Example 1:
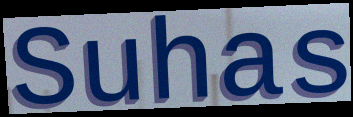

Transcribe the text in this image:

Suhas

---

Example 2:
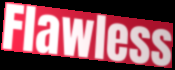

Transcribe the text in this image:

Flawless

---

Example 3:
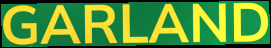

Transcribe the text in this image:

GARLAND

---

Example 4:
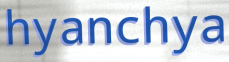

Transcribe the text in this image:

hyanchya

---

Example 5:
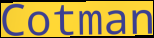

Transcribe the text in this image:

Cotman